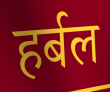
हर्बल